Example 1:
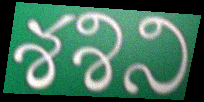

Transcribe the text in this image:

శశిని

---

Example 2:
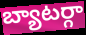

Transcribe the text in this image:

బ్యాటర్గా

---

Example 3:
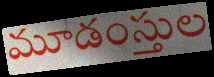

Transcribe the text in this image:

మూడంస్తుల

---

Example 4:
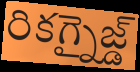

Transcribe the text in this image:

రికగ్నైజ్డ్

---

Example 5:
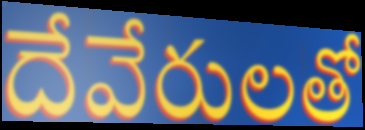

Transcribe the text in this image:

దేవేరులతో